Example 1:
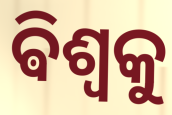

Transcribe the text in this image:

ଵିଶ୍ଵକୁ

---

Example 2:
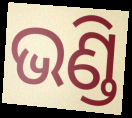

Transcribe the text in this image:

ଭଣ୍ଡି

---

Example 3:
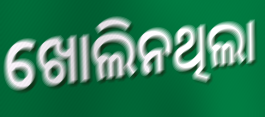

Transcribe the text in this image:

ଖୋଲିନଥିଲା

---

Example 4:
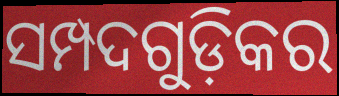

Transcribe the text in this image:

ସମ୍ପଦଗୁଡ଼ିକର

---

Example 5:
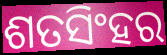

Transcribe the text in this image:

ଶତସିଂହର